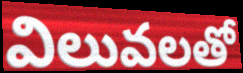
విలువలతో